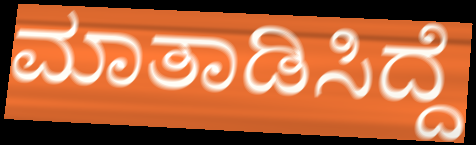
ಮಾತಾಡಿಸಿದ್ದೆ